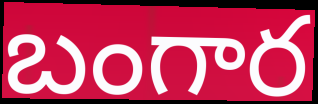
బంగార